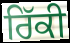
ਰਿੱਕੀ